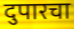
दुपारचा